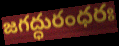
జగద్ధురంధరః